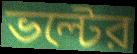
ভল্টের